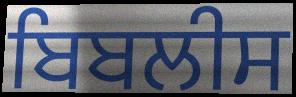
ਬਿਬਲੀਸ